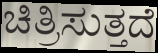
ಚಿತ್ರಿಸುತ್ತದೆ